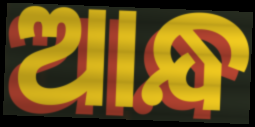
ଆନ୍ଧ